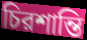
চিরশান্তি